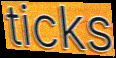
ticks